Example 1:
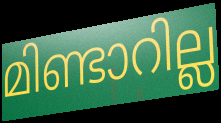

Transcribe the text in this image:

മിണ്ടാറില്ല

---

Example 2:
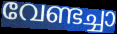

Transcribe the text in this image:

വേണ്ടച്ചാ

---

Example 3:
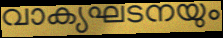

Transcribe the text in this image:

വാക്യഘടനയും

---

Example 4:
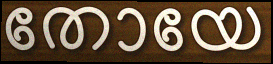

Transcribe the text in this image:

തോയേ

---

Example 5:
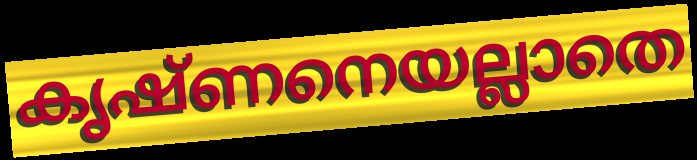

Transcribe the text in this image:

കൃഷ്ണനെയല്ലാതെ